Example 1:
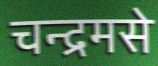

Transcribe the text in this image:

चन्द्रमसे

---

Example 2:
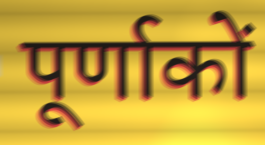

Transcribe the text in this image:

पूर्णाकों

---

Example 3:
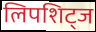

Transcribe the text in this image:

लिपशिट्ज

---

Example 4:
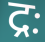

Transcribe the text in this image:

द्रः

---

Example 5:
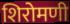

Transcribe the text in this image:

शिरोमणी